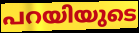
പറയിയുടെ